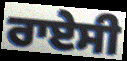
ਰਾਏਸੀ